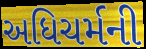
અધિચર્મની